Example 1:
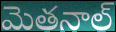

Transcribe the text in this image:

మెతనాల్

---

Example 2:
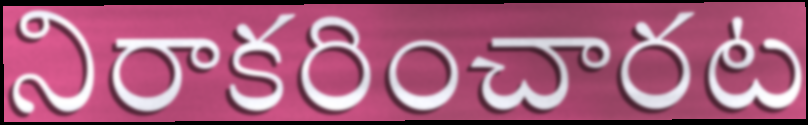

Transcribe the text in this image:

నిరాకరించారట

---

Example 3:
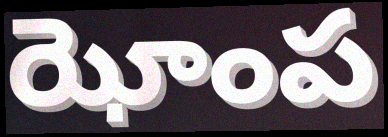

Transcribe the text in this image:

ఝోంప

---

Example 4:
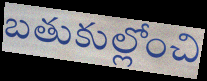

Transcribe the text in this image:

బతుకుల్లోంచి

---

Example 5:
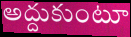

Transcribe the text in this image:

అద్దుకుంటూ